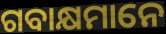
ଗବାକ୍ଷମାନେ